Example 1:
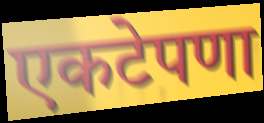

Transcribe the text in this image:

एकटेपणा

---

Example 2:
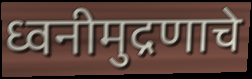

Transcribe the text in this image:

ध्वनीमुद्रणाचे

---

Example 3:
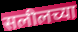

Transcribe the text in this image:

सलीलच्या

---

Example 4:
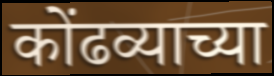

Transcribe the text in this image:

कोंढव्याच्या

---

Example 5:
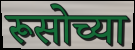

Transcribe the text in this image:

रूसोच्या